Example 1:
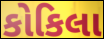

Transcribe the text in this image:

કોકિલા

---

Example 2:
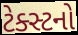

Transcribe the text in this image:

ટેક્સ્ટનો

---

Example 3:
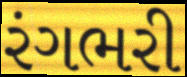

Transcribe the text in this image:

રંગભરી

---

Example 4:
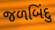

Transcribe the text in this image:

જળબિંદુ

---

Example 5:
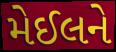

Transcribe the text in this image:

મેઈલને